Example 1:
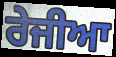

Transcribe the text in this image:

ਰੇਜੀਆ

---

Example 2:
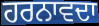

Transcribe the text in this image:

ਹਰਨਾਵਦਾ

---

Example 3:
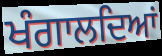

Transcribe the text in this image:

ਖੰਗਾਲਦਿਆਂ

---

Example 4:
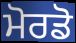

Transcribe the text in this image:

ਮੋਰਡੋ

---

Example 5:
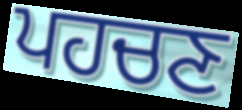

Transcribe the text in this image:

ਪਹਚਣ